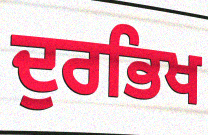
ਦੁਰਭਿਖ